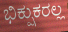
ಭಿಕ್ಷುಕರಲ್ಲ